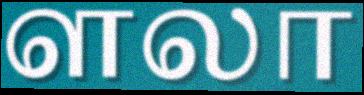
ளலா